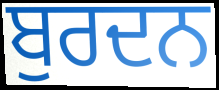
ਬੁਰਦਨ